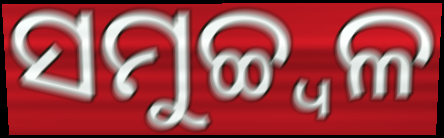
ସମୁଚ୍ଚ୍ୱଳ